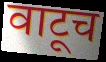
वाटूच